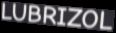
LUBRIZOL